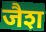
जैश